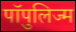
पॉपुलिज्म